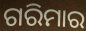
ଗରିମାର